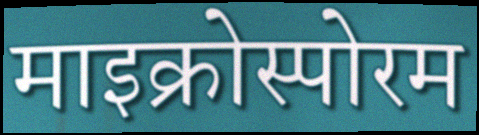
माइक्रोस्पोरम